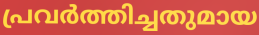
പ്രവർത്തിച്ചതുമായ